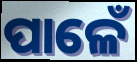
ପାଳେଁ